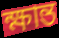
ক্ষান্ত